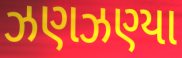
ઝણઝણ્યા